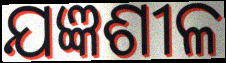
ଯଜ୍ଞଶୀଳ